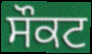
ਸੌਕਟ